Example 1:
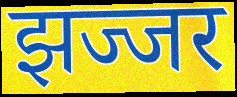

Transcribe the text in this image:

झज्जर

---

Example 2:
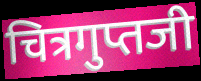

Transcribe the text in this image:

चित्रगुप्तजी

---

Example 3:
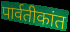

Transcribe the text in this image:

पार्वतीकांत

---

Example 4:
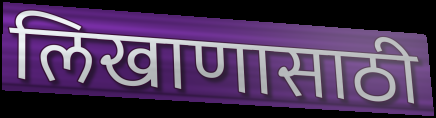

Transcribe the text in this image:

लिखाणासाठी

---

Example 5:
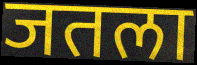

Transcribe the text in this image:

जतला